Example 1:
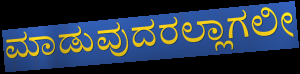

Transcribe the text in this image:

ಮಾಡುವುದರಲ್ಲಾಗಲೀ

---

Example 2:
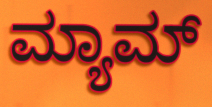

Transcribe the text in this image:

ಮ್ಯಾಮ್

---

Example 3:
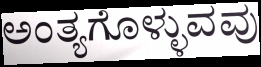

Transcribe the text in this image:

ಅಂತ್ಯಗೊಳ್ಳುವವು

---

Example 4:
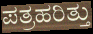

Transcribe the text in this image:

ಪತ್ರಹರಿತ್ತು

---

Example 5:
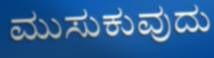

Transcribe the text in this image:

ಮುಸುಕುವುದು